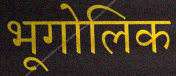
भूगोलिक